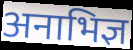
अनाभिज्ञ